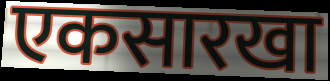
एकसारखा